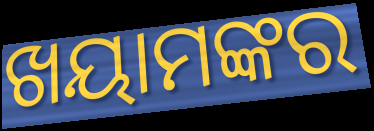
ଖୟାମଙ୍କର